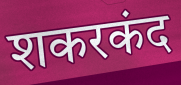
शकरकंद